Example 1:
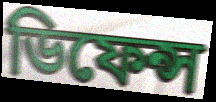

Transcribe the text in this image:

ডিফেন্স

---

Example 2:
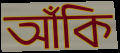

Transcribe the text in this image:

আঁকি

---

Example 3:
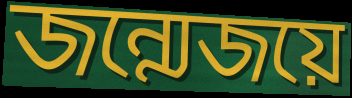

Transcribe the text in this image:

জন্মেজয়ে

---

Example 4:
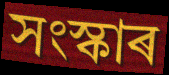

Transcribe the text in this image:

সংস্কাৰ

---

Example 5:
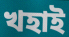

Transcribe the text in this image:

খহাই